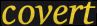
covert